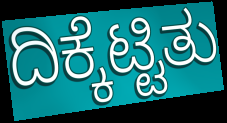
ದಿಕ್ಕೆಟ್ಟಿತು